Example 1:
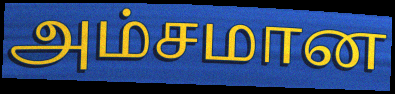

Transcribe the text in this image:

அம்சமான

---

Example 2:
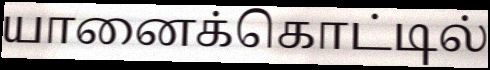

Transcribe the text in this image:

யானைக்கொட்டில்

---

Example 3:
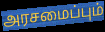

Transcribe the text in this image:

அரசமைப்பும்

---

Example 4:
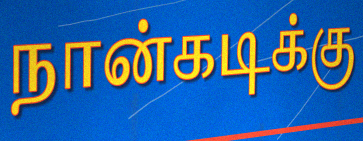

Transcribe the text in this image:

நான்கடிக்கு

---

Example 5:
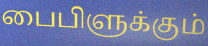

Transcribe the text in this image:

பைபிளுக்கும்